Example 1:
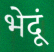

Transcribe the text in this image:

भेदूं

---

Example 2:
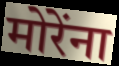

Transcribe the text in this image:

मोरेंना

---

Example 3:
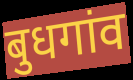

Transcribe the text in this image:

बुधगांव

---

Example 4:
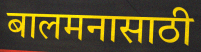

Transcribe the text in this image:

बालमनासाठी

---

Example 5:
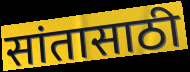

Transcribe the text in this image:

सांतासाठी